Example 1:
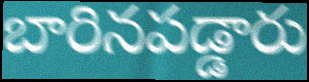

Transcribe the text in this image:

బారినపడ్డారు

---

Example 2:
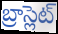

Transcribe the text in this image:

బ్రాస్లెట్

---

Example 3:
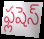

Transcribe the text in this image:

ఫ్లషెస్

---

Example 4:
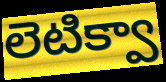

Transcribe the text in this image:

లెటిక్వా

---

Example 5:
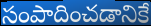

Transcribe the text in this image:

సంపాదించడానికే